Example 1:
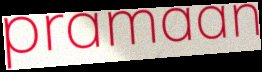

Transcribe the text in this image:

pramaan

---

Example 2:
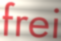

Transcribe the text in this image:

frei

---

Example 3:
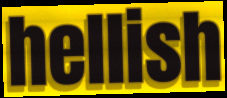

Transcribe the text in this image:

hellish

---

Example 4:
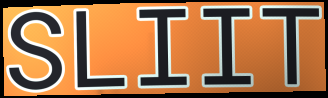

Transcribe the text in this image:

SLIIT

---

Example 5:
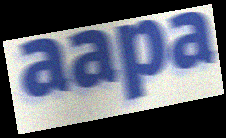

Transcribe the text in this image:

aapa